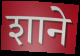
शाने